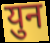
युन